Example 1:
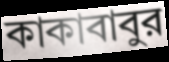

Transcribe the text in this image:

কাকাবাবুর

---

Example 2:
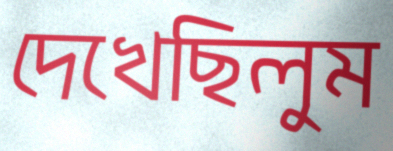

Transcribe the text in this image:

দেখেছিলুম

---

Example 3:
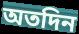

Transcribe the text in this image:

অতদিন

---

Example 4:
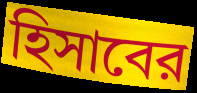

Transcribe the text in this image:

হিসাবের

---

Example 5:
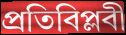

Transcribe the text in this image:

প্রতিবিপ্লবী